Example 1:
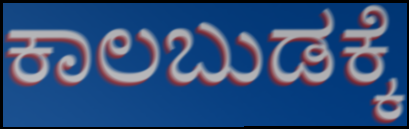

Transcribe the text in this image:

ಕಾಲಬುಡಕ್ಕೆ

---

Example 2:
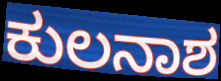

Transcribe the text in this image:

ಕುಲನಾಶ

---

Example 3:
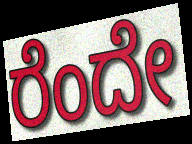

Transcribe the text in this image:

ರೆಂದೇ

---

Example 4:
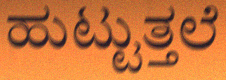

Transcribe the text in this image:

ಹುಟ್ಟುತ್ತಲೆ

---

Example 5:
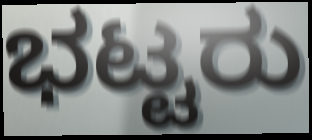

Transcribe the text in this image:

ಭಟ್ಟರು